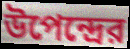
উপেন্দ্রের